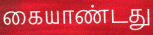
கையாண்டது